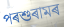
পৰশুৰামৰ